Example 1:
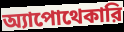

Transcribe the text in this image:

অ্যাপোথেকারি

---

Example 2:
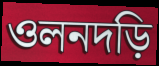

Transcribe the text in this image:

ওলনদড়ি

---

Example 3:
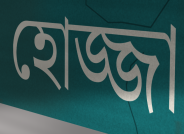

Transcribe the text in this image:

হোজ্জা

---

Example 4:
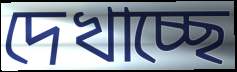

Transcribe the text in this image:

দেখাচ্ছে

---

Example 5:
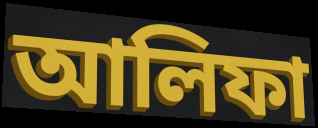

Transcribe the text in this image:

আলিফা